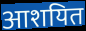
आशयित